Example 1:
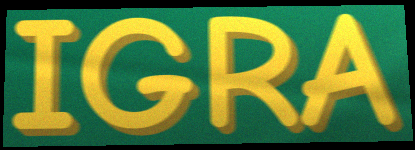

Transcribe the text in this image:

IGRA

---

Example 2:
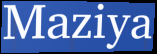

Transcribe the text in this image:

Maziya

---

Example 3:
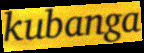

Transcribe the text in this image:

kubanga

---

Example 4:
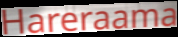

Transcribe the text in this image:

Hareraama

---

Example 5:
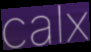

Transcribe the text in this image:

calx